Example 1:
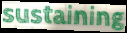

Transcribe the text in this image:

sustaining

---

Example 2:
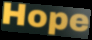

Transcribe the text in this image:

Hope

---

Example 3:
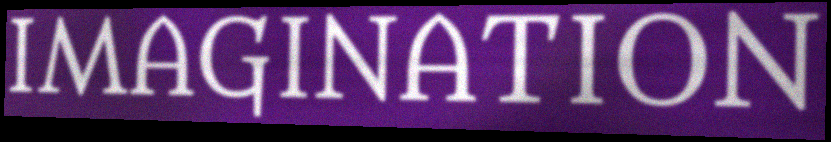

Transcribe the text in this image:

IMAGINATION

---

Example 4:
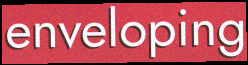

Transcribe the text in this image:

enveloping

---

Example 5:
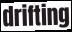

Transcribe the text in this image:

drifting